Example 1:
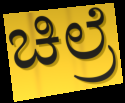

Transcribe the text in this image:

ಚಿಲ್ರೆ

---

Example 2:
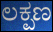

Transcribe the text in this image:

ಲಕ್ಪಣ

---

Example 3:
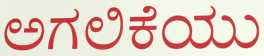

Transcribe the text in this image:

ಅಗಲಿಕೆಯು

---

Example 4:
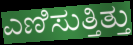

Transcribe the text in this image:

ಎಣಿಸುತ್ತಿತ್ತು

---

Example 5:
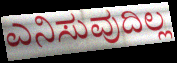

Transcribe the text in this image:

ಎನಿಸುವುದಿಲ್ಲ